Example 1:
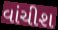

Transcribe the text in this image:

વાંચીશ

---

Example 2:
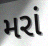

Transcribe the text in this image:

મરાં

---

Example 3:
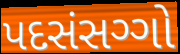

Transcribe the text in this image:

પદસંસગ્ગો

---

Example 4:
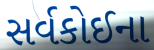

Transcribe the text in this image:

સર્વકોઈના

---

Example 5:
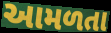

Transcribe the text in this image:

આમળતા